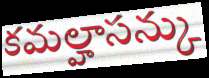
కమల్హాసన్కు